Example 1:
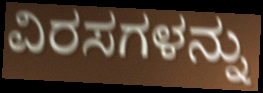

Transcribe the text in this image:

ವಿರಸಗಳನ್ನು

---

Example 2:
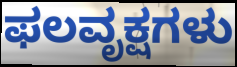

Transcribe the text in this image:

ಫಲವೃಕ್ಷಗಳು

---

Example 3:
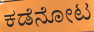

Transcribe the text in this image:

ಕಡೆನೋಟ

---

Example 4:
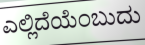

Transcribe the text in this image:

ಎಲ್ಲಿದೆಯೆಂಬುದು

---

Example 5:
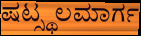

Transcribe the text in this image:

ಷಟ್ಸ್ಥಲಮಾರ್ಗ